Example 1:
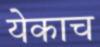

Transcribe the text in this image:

येकाच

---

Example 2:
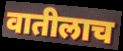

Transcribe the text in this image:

वातीलाच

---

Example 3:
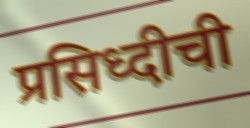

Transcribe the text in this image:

प्रसिध्दीची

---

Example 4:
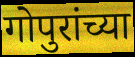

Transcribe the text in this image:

गोपुरांच्या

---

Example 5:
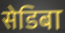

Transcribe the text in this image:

सेडिबा